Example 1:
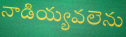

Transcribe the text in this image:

నాడియ్యవలెను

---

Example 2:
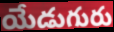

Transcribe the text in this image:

యేడుగురు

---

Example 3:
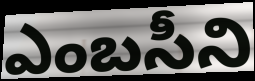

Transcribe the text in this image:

ఎంబసీని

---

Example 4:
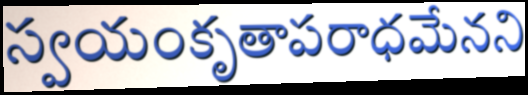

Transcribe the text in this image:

స్వయంకృతాపరాధమేనని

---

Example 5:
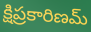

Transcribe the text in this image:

క్షిప్రకారిణమ్